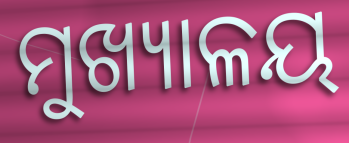
ମୁଖ୍ୟାଳୟ